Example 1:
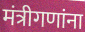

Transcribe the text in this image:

मंत्रीगणांना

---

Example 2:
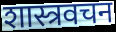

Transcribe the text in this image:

शास्त्रवचन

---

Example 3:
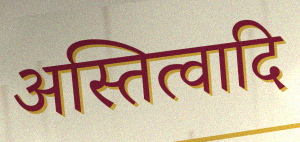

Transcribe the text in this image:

अस्तित्वादि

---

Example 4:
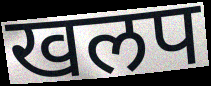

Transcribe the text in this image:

खलप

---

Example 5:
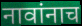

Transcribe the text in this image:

नावांनाच